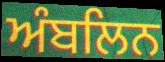
ਅੰਬਲਿਨ